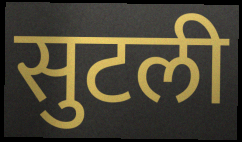
सुटली